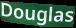
Douglas